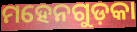
ମହେନଗୁଡ଼କା